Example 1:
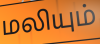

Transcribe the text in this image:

மலியும்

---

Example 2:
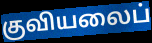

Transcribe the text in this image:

குவியலைப்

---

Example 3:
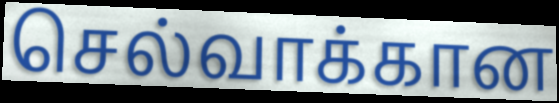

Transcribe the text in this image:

செல்வாக்கான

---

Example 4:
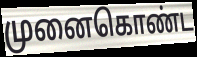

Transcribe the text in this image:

முனைகொண்ட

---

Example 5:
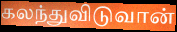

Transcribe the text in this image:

கலந்துவிடுவான்